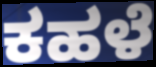
ಕಹಳೆ